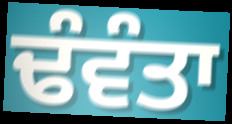
ਢੰਵੰਤਾ